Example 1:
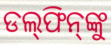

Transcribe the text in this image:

ଡଲ୍‌ଫିନ୍‌ଙ୍କୁ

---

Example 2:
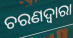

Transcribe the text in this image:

ଚରଣଦ୍ୱାରା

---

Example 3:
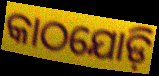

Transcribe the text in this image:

କାଠଯୋଡ଼ି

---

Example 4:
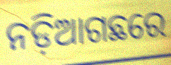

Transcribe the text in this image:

ନଡ଼ିଆଗଛରେ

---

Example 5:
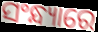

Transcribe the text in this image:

ସଂନ୍ଧ୍ୟାରେ